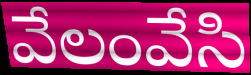
వేలంవేసి